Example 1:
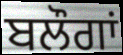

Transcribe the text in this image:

ਬਲੌਗਾਂ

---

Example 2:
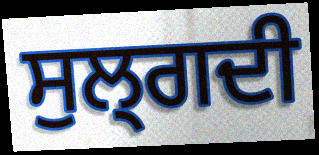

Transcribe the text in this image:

ਸੁਲ੍ਗਦੀ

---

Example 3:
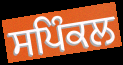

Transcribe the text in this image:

ਸਪਿੰਕਲ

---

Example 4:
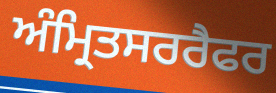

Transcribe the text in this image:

ਅੰਮ੍ਰਿਤਸਰਰੈਫਰ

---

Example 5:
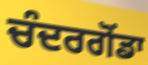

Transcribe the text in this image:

ਚੰਦਰਗੋਂਡਾ